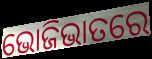
ଭୋଜିଭାତରେ